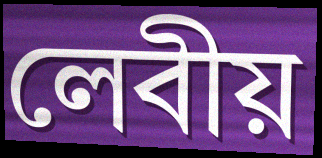
লেবীয়